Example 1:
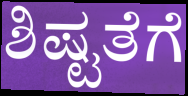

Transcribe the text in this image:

ಶಿಷ್ಟತೆಗೆ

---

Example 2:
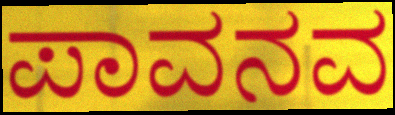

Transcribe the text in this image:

ಪಾವನವ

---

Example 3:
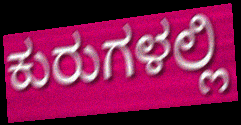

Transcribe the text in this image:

ಕುರುಗಳಲ್ಲಿ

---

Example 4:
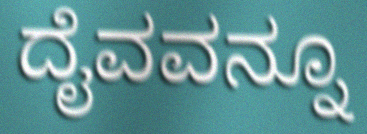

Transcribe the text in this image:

ದೈವವನ್ನೂ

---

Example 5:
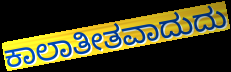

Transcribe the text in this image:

ಕಾಲಾತೀತವಾದುದು